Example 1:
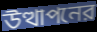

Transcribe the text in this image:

উত্থাপনের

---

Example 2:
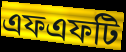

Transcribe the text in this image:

এফএফটি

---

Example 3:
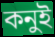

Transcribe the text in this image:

কনুই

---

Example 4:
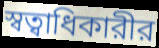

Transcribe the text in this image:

স্বত্বাধিকারীর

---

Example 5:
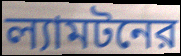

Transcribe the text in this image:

ল্যামটনের